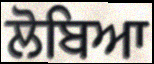
ਲੋਬਿਆ